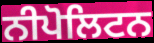
ਨੀਪੋਲਿਟਨ